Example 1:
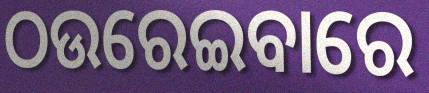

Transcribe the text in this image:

ଠଉରେଇବାରେ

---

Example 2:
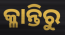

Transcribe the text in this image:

କ୍ଳାନ୍ତିରୁ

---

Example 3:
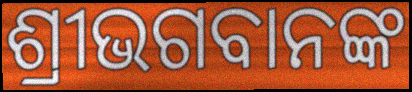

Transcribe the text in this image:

ଶ୍ରୀଭଗବାନଙ୍କ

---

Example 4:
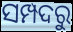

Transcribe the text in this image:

ସମ୍ପଦରୁ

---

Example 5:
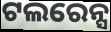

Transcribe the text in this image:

ଟଲରେନ୍ସ